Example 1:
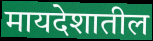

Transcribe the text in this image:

मायदेशातील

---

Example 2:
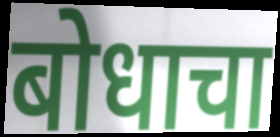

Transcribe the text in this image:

बोधाचा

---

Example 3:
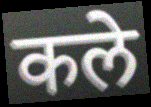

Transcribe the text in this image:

कले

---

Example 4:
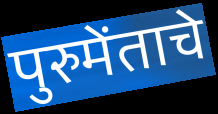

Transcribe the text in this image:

पुरुमेंताचे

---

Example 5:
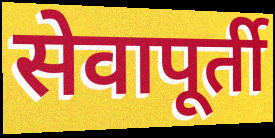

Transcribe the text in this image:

सेवापूर्ती